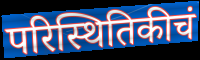
परिस्थितिकीचं